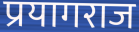
प्रयागराज